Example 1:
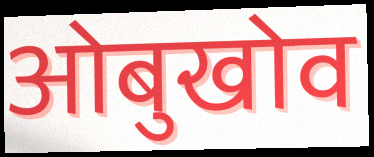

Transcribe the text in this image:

ओबुखोव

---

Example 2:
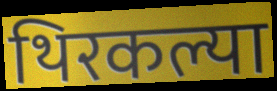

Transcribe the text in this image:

थिरकल्या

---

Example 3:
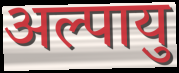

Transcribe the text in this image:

अल्पायु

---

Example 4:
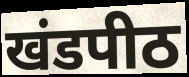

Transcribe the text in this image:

खंडपीठ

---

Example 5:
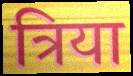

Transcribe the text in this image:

त्रिया